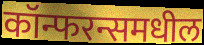
कॉन्फरन्समधील